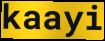
kaayi